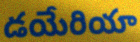
డయేరియా